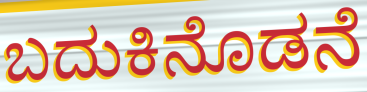
ಬದುಕಿನೊಡನೆ